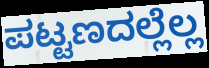
ಪಟ್ಟಣದಲ್ಲೆಲ್ಲ